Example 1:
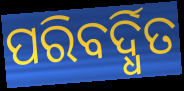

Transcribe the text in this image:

ପରିବର୍ଦ୍ଧିତ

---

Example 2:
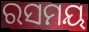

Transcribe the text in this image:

ରସମୟ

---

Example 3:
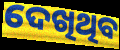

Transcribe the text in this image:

ଦେଖିଥିବ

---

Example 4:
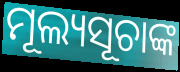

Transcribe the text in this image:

ମୂଲ୍ୟସୂଚାଙ୍କ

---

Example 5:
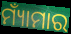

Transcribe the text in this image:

ମ୍ୟାଁମାର